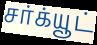
சர்க்யூட்